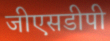
जीएसडीपी